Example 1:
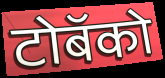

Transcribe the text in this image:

टोबॅको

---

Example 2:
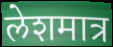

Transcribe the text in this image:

लेशमात्र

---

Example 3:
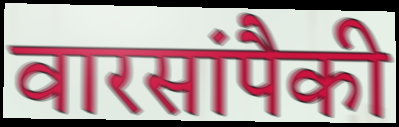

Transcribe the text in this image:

वारसांपैकी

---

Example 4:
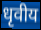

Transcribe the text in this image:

धृवीय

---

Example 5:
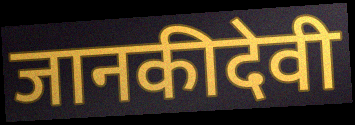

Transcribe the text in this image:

जानकीदेवी